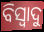
ବିସ୍ୱାଦୁ